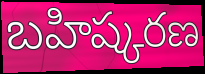
బహిష్కరణ